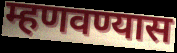
म्हणवण्यास